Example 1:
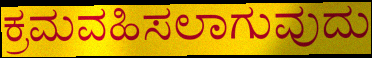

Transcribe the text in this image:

ಕ್ರಮವಹಿಸಲಾಗುವುದು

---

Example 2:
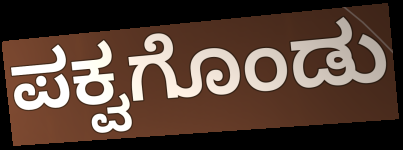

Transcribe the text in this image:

ಪಕ್ವಗೊಂಡು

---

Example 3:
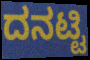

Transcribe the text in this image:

ದನಟ್ಟಿ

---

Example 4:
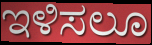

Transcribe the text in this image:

ಇಳಿಸಲೂ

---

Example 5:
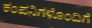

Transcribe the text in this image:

ಕಂಪನಿಗಳೊಂದಿಗೆ